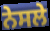
ਨੇਸਲੇ